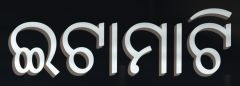
ଇଟାମାଟି